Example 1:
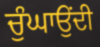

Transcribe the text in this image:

ਚੁੰਘਾਉਂਦੀ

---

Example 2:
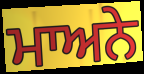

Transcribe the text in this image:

ਮਾਅਨੇ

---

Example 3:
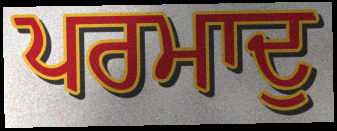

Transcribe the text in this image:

ਪਰਮਾਦੁ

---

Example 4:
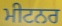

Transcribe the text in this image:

ਮੀਟਨਰ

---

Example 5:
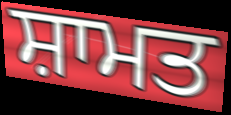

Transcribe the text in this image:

ਸ਼ਾਮਤ